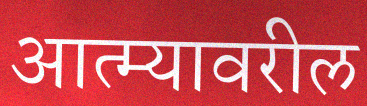
आत्म्यावरील